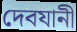
দেবযানী